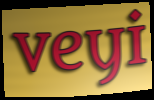
veyi